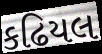
કઢિયલ